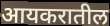
आयकरातील